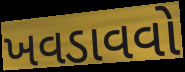
ખવડાવવો